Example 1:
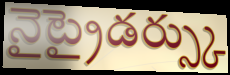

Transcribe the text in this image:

నైట్రైడర్స్కు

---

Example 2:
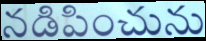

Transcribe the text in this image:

నడిపించును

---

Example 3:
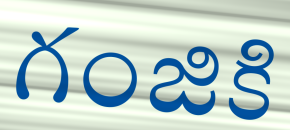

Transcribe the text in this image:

గంజికి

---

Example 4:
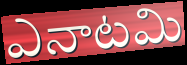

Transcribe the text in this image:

ఎనాటమి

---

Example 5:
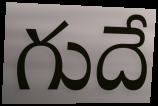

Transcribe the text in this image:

గుదే